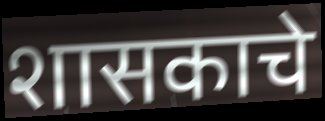
शासकाचे